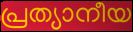
പ്രത്യാനീയ